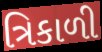
ત્રિકાળી